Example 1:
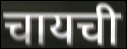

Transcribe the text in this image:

चायची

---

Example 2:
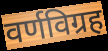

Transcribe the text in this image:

वर्णविग्रह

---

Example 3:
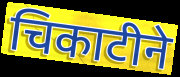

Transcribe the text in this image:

चिकाटीने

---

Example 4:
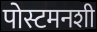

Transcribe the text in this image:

पोस्टमनशी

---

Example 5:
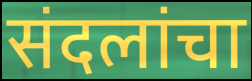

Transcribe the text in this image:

संदलांचा